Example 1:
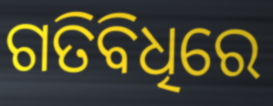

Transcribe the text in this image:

ଗତିବିଧିରେ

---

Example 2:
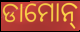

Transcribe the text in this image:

ଡାମୋନ୍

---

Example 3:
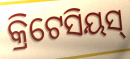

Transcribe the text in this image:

କ୍ରିଟେସିୟସ୍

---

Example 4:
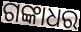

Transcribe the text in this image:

ଗଙ୍କାଧର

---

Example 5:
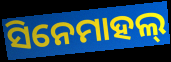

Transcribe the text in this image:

ସିନେମାହଲ୍